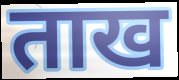
ताख